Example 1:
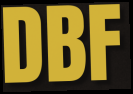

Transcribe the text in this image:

DBF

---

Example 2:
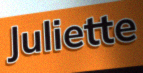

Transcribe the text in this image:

Juliette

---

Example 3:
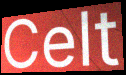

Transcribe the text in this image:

Celt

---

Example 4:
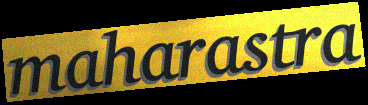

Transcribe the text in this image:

maharastra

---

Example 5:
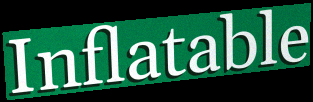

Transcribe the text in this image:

Inflatable